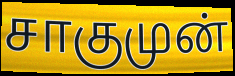
சாகுமுன்